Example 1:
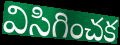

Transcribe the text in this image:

విసిగించక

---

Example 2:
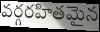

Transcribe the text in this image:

వర్గరహితమైన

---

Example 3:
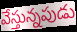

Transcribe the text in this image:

వేస్తున్నపుడు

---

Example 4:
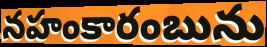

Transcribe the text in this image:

నహంకారంబును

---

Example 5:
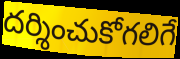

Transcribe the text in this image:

దర్శించుకోగలిగే